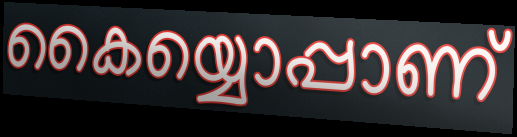
കൈയ്യൊപ്പാണ്